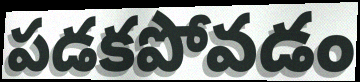
పడకపోవడం